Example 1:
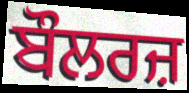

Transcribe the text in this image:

ਬੌਲਰਜ਼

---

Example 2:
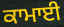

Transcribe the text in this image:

ਕਾਮਾਈ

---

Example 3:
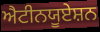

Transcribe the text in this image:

ਐਟੀਨਯੂਏਸ਼ਨ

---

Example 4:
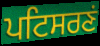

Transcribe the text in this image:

ਪਟਿਸਰਣਂ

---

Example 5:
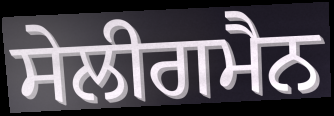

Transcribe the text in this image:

ਸੇਲੀਗਮੈਨ